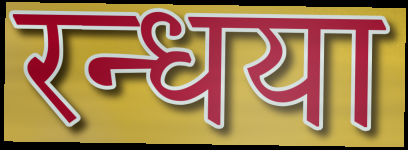
रन्धया